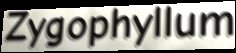
Zygophyllum